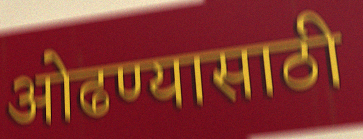
ओढण्यासाठी